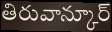
తిరువాన్కూర్